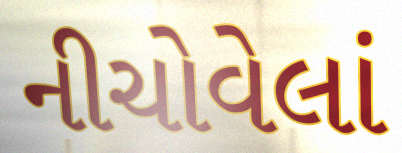
નીચોવેલાં